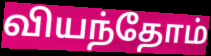
வியந்தோம்